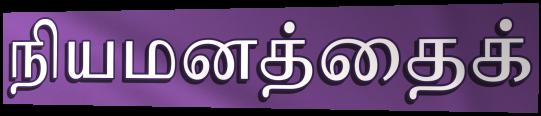
நியமனத்தைக்